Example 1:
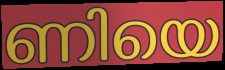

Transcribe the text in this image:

ണിയെ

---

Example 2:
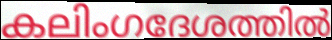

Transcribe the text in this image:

കലിംഗദേശത്തിൽ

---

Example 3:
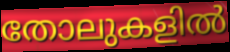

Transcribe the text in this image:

തോലുകളിൽ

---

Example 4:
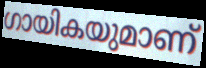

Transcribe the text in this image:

ഗായികയുമാണ്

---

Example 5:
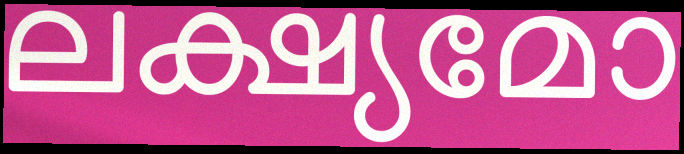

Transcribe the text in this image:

ലക്ഷ്യമോ